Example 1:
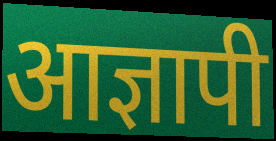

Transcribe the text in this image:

आज्ञापी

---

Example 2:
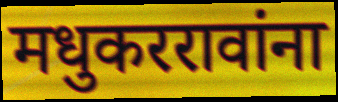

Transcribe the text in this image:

मधुकररावांना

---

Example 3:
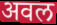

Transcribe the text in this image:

अवल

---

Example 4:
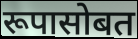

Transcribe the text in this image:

रूपासोबत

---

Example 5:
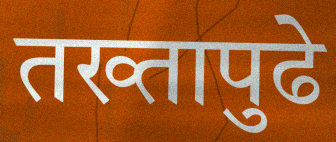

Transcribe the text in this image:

तख्तापुढे